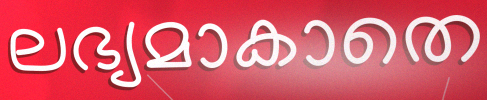
ലഭ്യമാകാതെ